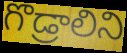
గొడ్రాలిని